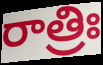
రాత్రిః